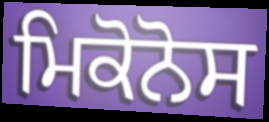
ਮਿਕੋਨੋਸ